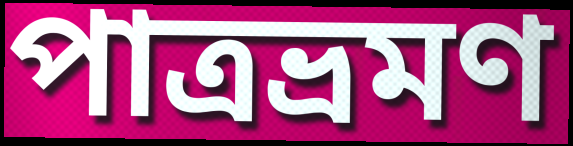
পাত্রভ্রমণ